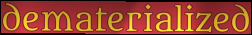
dematerialized